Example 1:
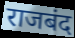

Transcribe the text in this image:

राजबंद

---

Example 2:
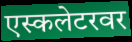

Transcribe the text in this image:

एस्कलेटरवर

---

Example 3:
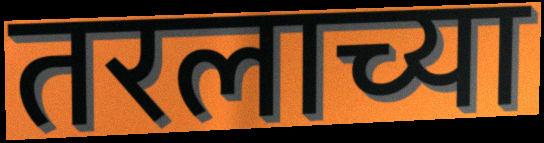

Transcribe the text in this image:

तरलाच्या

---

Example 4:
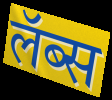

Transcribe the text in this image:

लॅब्स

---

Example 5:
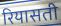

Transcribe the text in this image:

रियासती